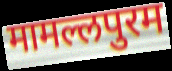
मामल्लपुरम